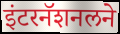
इंटरनॅशनलने